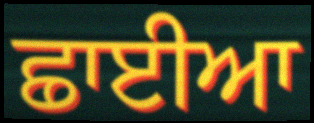
ਛਾਈਆ